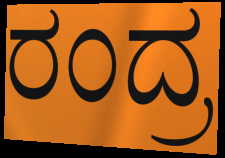
ರಂದ್ರ